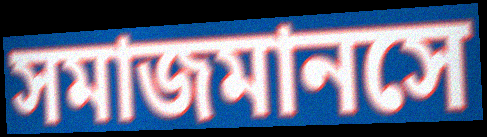
সমাজমানসে